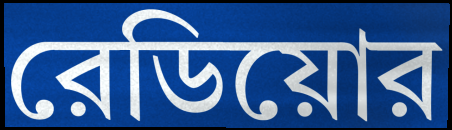
রেডিয়োর